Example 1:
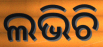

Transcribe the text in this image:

ଲଭିଚି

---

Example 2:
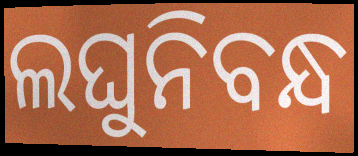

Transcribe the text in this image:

ଲଘୁନିବନ୍ଧ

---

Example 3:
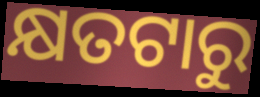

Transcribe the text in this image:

କ୍ଷତଟାରୁ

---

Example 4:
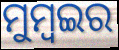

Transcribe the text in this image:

ମୁମ୍ବଇର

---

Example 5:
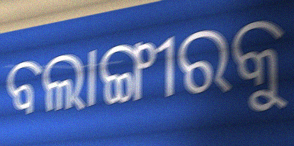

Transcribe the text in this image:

ବଲାଙ୍ଗୀରକୁ